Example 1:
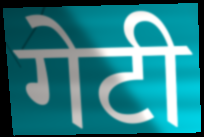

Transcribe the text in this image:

गेटी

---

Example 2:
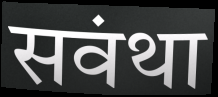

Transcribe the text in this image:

सवंथा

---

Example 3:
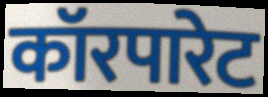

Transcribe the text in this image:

कॉरपारेट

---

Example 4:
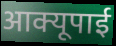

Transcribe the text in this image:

आक्यूपाई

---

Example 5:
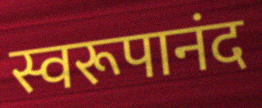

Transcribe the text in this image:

स्वरूपानंद